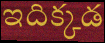
ఇదిక్కడ